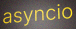
asyncio